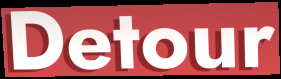
Detour